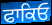
ਫਾਕਿਓ